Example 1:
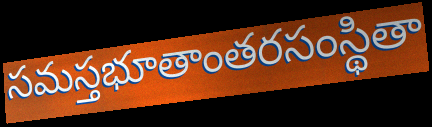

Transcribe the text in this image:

సమస్తభూతాంతరసంస్థితా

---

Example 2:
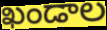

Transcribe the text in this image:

ఖండాల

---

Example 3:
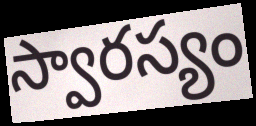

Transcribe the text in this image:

స్వారస్యం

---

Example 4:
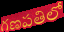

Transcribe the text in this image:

గణపతిలో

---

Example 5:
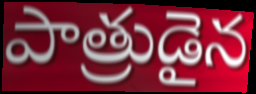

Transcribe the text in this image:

పాత్రుడైన